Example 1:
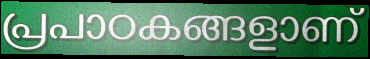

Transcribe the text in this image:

പ്രപാഠകങ്ങളാണ്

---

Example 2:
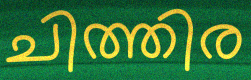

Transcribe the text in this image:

ചിത്തിര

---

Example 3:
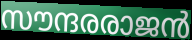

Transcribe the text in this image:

സൗന്ദരരാജൻ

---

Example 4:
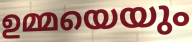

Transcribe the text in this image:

ഉമ്മയെയും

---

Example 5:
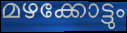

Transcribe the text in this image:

മഴക്കോട്ടും